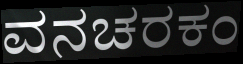
ವನಚರಕಂ